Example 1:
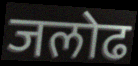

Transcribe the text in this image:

जलोढ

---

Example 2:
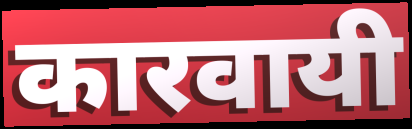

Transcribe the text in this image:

कारवायी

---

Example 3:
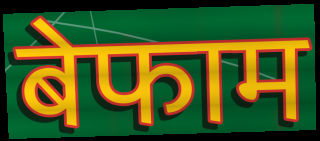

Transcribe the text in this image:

बेफाम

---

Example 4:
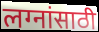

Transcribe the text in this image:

लग्नांसाठी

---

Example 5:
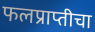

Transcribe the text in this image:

फलप्राप्तीचा